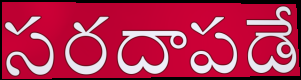
సరదాపడే